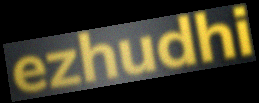
ezhudhi